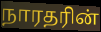
நாரதரின்